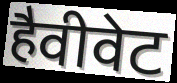
हैवीवेट